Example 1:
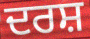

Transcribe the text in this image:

ਦਰਸ਼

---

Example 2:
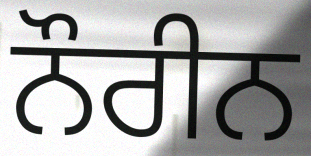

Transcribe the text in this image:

ਨੌਰੀਨ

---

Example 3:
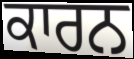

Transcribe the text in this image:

ਕਾਰਨ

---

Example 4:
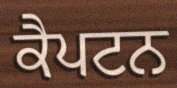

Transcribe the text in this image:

ਕੈਪਟਨ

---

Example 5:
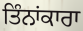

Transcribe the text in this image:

ਤਿੰਨਾਂਕਾਰਾ